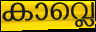
കാവ്ലെ